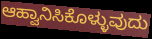
ಆಹ್ವಾನಿಸಿಕೊಳ್ಳುವುದು